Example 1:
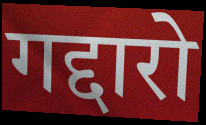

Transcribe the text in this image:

गद्दारो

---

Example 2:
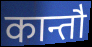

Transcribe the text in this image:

कान्तौ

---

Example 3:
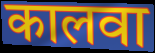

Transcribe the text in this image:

कालवा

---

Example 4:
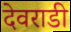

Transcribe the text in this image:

देवराडी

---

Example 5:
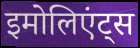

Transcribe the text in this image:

इमोलिएंट्स